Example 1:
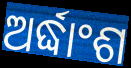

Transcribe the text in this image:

ଅର୍ଦ୍ଧାଂଶ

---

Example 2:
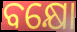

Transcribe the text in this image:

ବକ୍ଷୋ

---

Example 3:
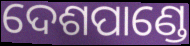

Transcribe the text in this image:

ଦେଶପାଣ୍ଡେ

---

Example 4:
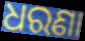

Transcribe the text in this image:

ଧରଣା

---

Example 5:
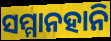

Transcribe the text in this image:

ସମ୍ମାନହାନି